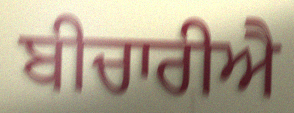
ਬੀਚਾਰੀਐ